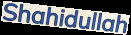
Shahidullah